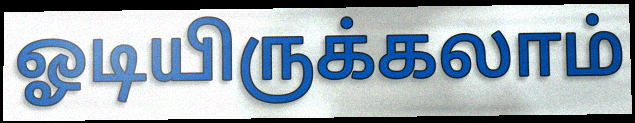
ஓடியிருக்கலாம்